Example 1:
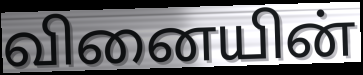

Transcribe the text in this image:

வினையின்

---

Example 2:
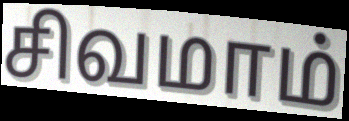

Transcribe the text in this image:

சிவமாம்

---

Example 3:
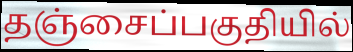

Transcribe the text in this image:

தஞ்சைப்பகுதியில்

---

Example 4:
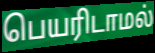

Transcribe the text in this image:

பெயரிடாமல்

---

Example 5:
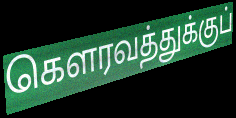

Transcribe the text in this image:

கௌரவத்துக்குப்